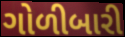
ગોળીબારી